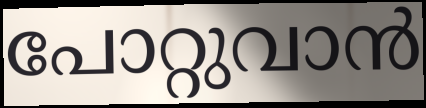
പോറ്റുവാൻ